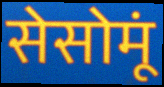
सेसोमूं